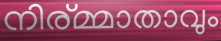
നിര്മ്മാതാവും